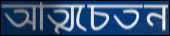
আত্মচেতন